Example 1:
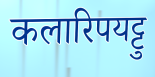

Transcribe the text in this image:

कलारिपयट्टु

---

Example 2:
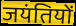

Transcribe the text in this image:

जयंतियों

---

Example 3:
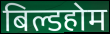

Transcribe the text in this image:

बिल्डहोम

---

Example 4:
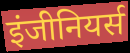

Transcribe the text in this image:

इंजीनियर्स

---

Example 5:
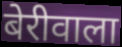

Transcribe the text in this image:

बेरीवाला